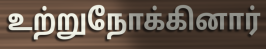
உற்றுநோக்கினார்